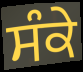
ਸੰਕੇ